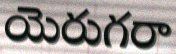
యెరుగరా